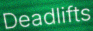
Deadlifts